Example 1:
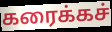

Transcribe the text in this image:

கரைக்கச்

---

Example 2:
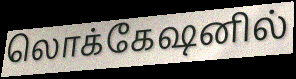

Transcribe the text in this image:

லொக்கேஷனில்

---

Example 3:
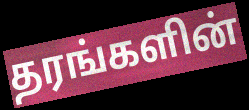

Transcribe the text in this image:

தரங்களின்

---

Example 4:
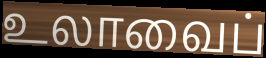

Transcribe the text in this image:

உலாவைப்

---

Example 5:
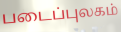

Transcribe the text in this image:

படைப்புலகம்